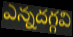
ఎన్నదగ్గవి